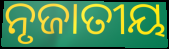
ନୃଜାତୀୟ